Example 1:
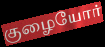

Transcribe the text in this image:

குழையோர்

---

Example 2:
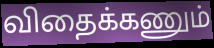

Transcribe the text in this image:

விதைக்கணும்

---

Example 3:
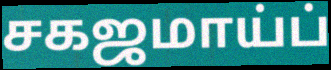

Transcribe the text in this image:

சகஜமாய்ப்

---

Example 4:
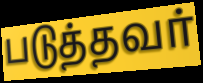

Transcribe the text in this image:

படுத்தவர்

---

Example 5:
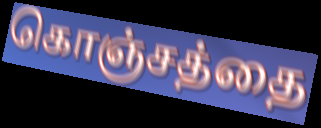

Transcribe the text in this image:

கொஞ்சத்தை